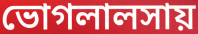
ভোগলালসায়